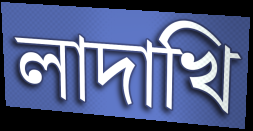
লাদাখি